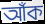
আঁক